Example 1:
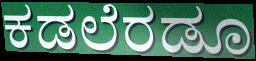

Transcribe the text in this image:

ಕಡಲೆರಡೂ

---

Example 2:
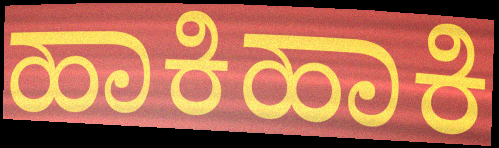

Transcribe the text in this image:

ಹಾಕಿಹಾಕಿ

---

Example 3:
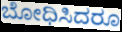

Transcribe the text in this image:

ಬೋಧಿಸಿದರೂ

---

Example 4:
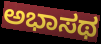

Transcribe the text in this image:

ಅಭಾಸಥ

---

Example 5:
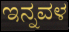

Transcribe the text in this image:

ಇನ್ನವಳ